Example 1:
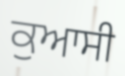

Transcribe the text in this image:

ਕੁਆਸੀ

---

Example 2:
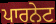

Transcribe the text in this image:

ਪਾਰਨੇਟ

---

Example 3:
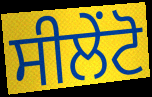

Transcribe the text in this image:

ਸੀਲੇਂਟੋ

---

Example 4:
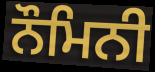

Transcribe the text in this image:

ਨੌਮਿਨੀ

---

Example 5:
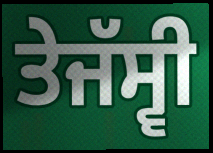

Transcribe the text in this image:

ਤੇਜੱਸ੍ਵੀ